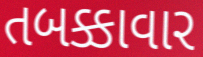
તબક્કાવાર